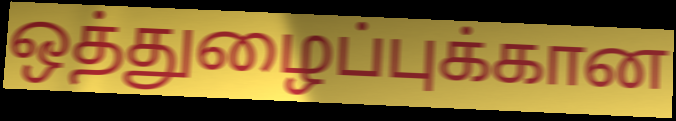
ஒத்துழைப்புக்கான